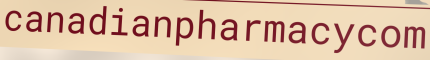
canadianpharmacycom